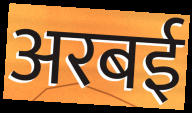
अरबई